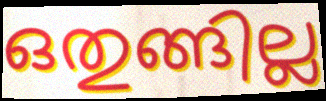
ഒതുങ്ങില്ല